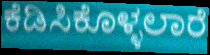
ಕೆಡಿಸಿಕೊಳ್ಳಲಾರೆ